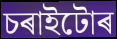
চৰাইটোৰ